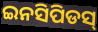
ଇନସିପିଡସ୍